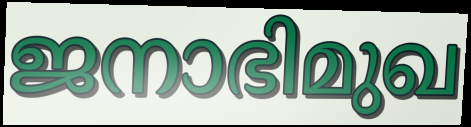
ജനാഭിമുഖ